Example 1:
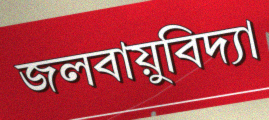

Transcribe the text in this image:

জলবায়ুবিদ্যা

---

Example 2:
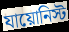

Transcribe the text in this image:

যায়োনিস্ট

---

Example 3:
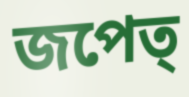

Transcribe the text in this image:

জপেত্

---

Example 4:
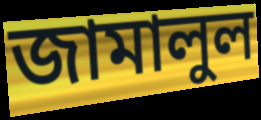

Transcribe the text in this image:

জামালুল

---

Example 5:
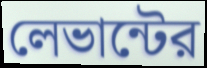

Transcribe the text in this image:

লেভান্টের